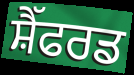
ਸ਼ੈੱਫਰਡ